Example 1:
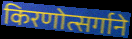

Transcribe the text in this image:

किरणोत्सर्गाने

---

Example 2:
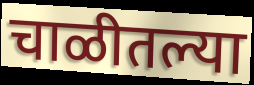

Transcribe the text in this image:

चाळीतल्या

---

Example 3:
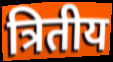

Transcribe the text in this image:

त्रितीय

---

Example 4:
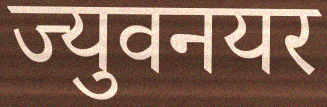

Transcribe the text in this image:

ज्युवनयर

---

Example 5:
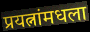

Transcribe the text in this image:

प्रयत्नांमधला